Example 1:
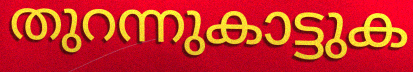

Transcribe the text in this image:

തുറന്നുകാട്ടുക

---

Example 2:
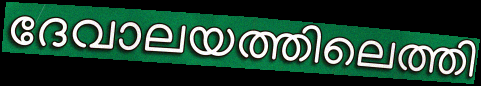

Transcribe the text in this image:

ദേവാലയത്തിലെത്തി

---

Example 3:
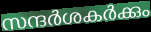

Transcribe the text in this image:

സന്ദർശകർക്കും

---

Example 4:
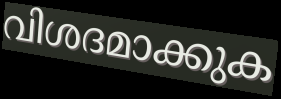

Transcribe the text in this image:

വിശദമാക്കുക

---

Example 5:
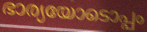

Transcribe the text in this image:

ഭാര്യയോടൊപ്പം